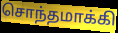
சொந்தமாக்கி